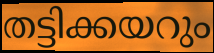
തട്ടിക്കയറും